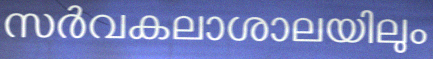
സർവകലാശാലയിലും